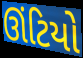
ઊંટિયો